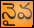
నైవ